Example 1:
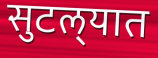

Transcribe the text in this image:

सुटल्यात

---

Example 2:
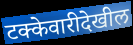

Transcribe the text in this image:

टक्केवारीदेखील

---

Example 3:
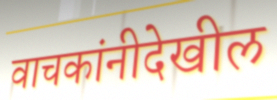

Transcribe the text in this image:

वाचकांनीदेखील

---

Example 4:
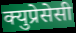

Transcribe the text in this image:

क्युप्रेसेसी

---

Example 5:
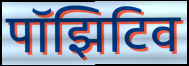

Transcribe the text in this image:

पॉझिटिव